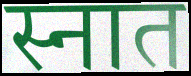
स्नात